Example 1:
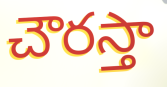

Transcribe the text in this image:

చౌరస్తా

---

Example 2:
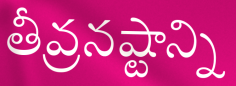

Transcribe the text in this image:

తీవ్రనష్టాన్ని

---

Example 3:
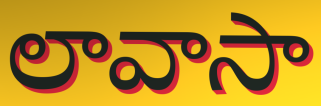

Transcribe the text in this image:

లావాసా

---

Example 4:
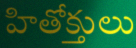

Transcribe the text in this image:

హితోక్తులు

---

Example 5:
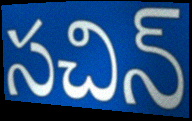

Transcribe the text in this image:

సచిన్